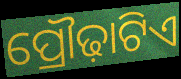
ପ୍ରୌଢ଼ାଟିଏ